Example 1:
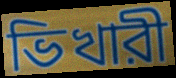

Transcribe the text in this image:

ভিখারী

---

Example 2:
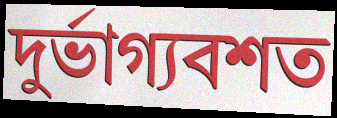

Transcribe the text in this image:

দুর্ভাগ্যবশত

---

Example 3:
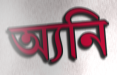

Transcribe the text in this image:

অ্যনি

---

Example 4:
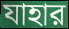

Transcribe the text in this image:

যাহার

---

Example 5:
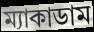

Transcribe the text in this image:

ম্যাকাডাম